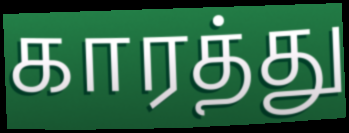
காரத்து